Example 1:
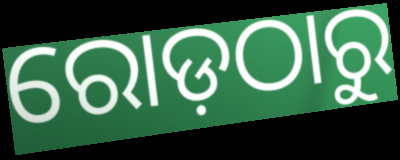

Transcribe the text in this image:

ରୋଡ଼ଠାରୁ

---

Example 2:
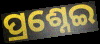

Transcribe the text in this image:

ପ୍ରଶ୍ନେଇ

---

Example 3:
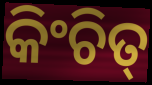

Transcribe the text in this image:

କିଂଚିତ୍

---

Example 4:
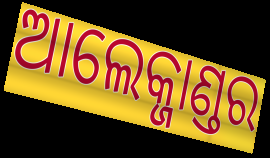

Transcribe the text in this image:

ଆଲେକ୍ଜାଣ୍ଡର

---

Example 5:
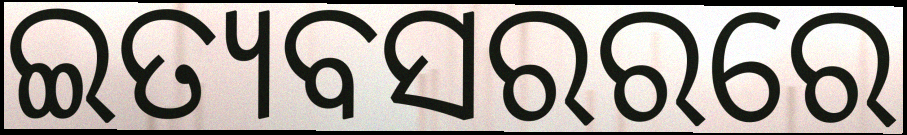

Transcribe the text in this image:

ଇତ୍ୟବସରରରେ